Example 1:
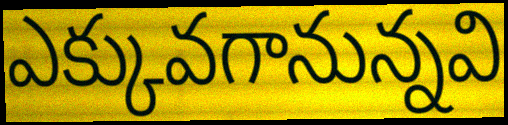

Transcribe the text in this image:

ఎక్కువగానున్నవి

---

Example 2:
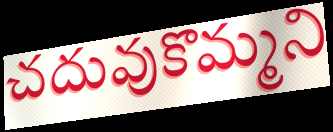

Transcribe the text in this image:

చదువుకొమ్మని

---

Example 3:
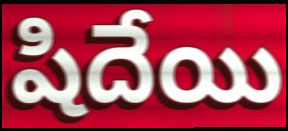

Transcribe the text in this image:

షిదేయి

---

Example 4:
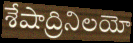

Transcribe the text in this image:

శేషాద్రినిలయో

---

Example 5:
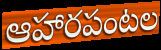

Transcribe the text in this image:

ఆహారపంటల